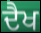
ਦੈਖ